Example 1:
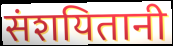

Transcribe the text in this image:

संशयितानी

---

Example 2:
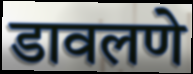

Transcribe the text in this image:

डावलणे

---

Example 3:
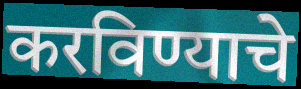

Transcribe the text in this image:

करविण्याचे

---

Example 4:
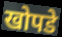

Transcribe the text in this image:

खोपडे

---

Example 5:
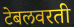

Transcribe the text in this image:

टेबलवरती